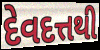
દેવદત્તથી